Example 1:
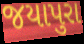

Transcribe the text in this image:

જયાપુરા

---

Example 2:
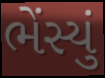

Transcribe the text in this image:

ભેંસ્યું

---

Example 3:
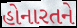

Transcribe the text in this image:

હોનારતને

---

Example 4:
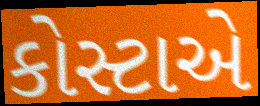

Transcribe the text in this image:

કોસ્ટાએ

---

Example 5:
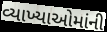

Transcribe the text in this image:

વ્યાખ્યાઓમાંની